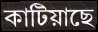
কাটিয়াছে